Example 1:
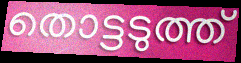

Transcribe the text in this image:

തൊട്ടടുത്ത്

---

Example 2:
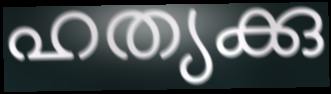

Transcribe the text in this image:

ഹത്യക്കു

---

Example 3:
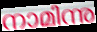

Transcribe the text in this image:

നാമിന്നു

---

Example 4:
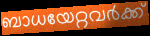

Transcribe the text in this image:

ബാധയേറ്റവർക്ക്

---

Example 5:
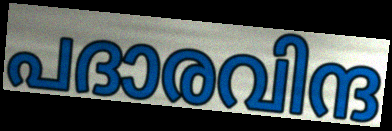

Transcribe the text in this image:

പദാരവിന്ദ